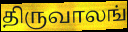
திருவாலங்